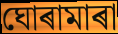
ঘোৰামাৰা